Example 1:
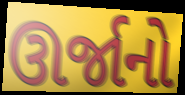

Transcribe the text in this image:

ઊર્જાનો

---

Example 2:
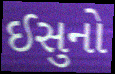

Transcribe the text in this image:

ઈસુનો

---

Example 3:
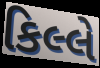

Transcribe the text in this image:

કિલ્લે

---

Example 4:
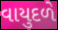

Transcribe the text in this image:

વાયુદળે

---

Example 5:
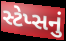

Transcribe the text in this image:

સ્ટેપ્સનું